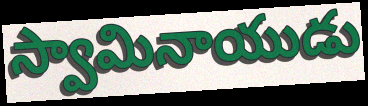
స్వామినాయుడు